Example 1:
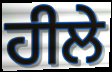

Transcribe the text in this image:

ਹੀਲੇ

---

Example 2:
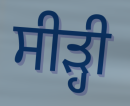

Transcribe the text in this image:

ਸੀੜ੍ਹੀ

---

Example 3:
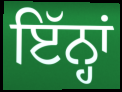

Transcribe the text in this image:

ਇੱਨ੍ਹਾਂ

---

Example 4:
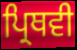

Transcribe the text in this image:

ਪ੍ਰਿਥਵੀ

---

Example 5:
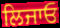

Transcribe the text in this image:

ਲਿਜਾਓ